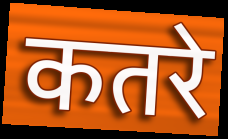
कतरे